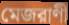
মেজরাণী